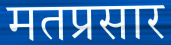
मतप्रसार